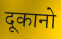
दूकानो